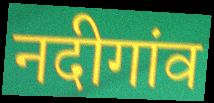
नदीगांव